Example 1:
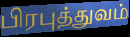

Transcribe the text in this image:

பிரபுத்துவம்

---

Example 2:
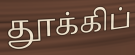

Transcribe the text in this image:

தூக்கிப்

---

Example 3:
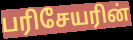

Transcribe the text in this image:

பரிசேயரின்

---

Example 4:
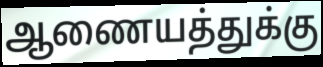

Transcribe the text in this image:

ஆணையத்துக்கு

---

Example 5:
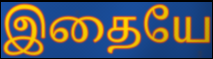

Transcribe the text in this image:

இதையே